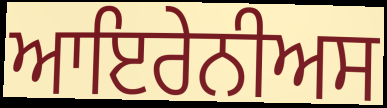
ਆਇਰੇਨੀਅਸ